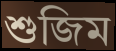
শুজিম